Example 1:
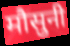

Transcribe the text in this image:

मौसुनी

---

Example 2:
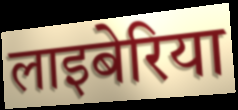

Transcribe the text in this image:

लाइबेरिया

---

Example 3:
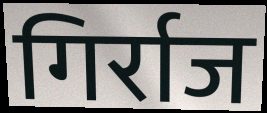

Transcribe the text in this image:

गिर्राज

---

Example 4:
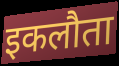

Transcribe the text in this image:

इकलौता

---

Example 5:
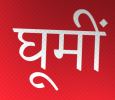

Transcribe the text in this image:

घूमीं